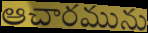
ఆచారమును